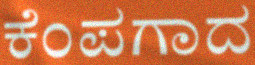
ಕೆಂಪಗಾದ